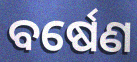
ବର୍ଷେଣ